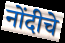
नोंदीचे